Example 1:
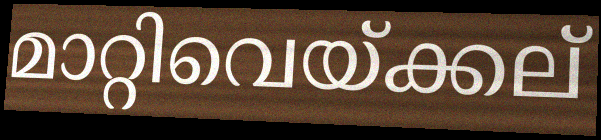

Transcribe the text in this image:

മാറ്റിവെയ്ക്കല്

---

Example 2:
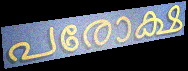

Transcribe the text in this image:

പരോക്ഷ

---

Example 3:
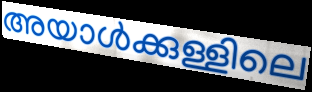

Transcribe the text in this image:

അയാൾക്കുള്ളിലെ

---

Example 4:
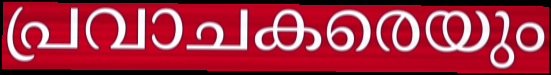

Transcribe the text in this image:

പ്രവാചകരെയും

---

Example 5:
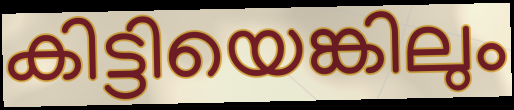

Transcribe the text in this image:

കിട്ടിയെങ്കിലും